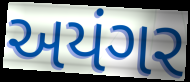
અયંગર